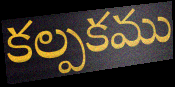
కల్పకము